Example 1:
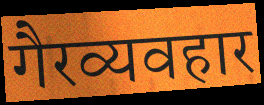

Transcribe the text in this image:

गैरव्यवहार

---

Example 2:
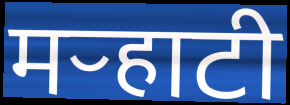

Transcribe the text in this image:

मऱ्हाटी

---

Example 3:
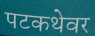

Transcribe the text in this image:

पटकथेवर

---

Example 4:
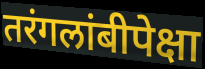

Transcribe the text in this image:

तरंगलांबीपेक्षा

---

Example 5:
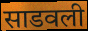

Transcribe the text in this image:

साडवली